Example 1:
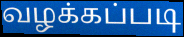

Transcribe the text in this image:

வழக்கப்படி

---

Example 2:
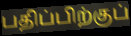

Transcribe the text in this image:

பதிப்பிற்குப்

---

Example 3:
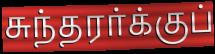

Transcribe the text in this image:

சுந்தரர்க்குப்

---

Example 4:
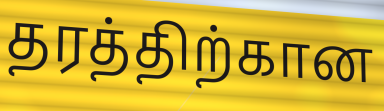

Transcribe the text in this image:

தரத்திற்கான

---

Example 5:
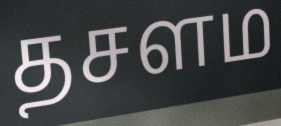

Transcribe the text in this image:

தசளம